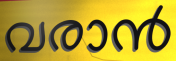
വരാൻ